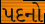
પદનો